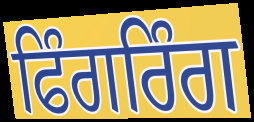
ਫਿੰਗਰਿੰਗ